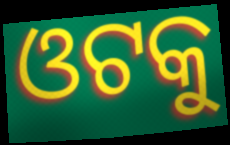
ଓଟକୁ